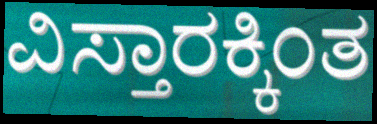
ವಿಸ್ತಾರಕ್ಕಿಂತ